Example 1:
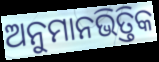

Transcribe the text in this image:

ଅନୁମାନଭିତ୍ତିକ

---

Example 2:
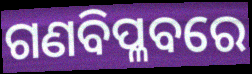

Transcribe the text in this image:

ଗଣବିପ୍ଳବରେ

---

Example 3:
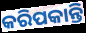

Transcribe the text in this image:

କରିପକାନ୍ତି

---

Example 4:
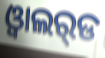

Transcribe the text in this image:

ଓ୍ବାଲର୍‌ଡ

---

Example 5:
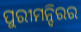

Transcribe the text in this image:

ପୁରୀମନ୍ଦିରର